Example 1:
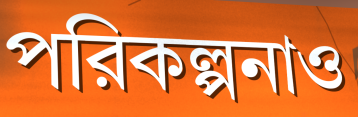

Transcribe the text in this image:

পরিকল্পনাও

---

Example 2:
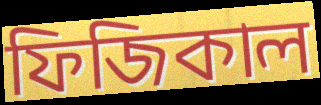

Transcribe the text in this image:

ফিজিকাল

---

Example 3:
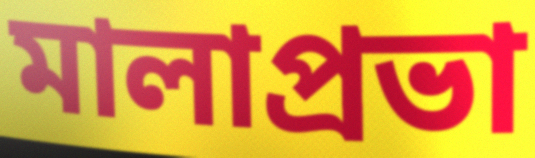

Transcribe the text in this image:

মালাপ্রভা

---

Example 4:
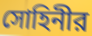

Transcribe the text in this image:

সোহিনীর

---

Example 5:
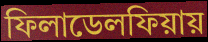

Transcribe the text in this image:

ফিলাডেলফিয়ায়